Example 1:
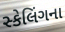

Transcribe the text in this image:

સ્કેલિંગના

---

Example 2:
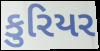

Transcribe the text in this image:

કુરિયર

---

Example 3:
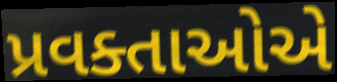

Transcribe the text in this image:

પ્રવક્તાઓએ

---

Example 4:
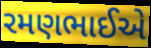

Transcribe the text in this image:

રમણભાઈએ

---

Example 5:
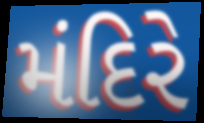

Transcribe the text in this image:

મંદિરે